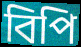
বিপি